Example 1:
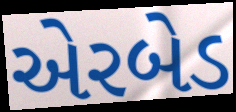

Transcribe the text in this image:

એરબેડ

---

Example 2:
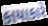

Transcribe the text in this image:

કાયાકારે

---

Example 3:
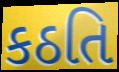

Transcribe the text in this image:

કઠતિ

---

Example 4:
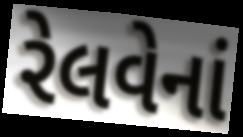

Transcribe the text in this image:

રેલવેનાં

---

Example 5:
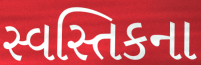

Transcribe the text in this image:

સ્વસ્તિકના